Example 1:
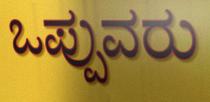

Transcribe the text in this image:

ಒಪ್ಪುವರು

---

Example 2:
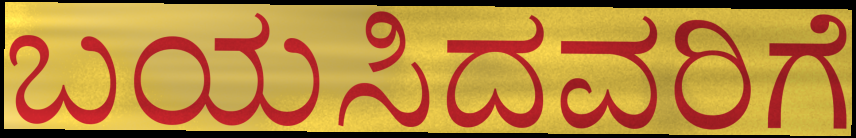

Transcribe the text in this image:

ಬಯಸಿದವರಿಗೆ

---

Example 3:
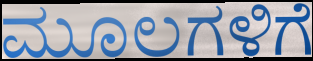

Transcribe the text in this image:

ಮೂಲಗಳಿಗೆ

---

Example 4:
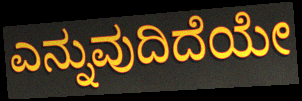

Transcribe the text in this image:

ಎನ್ನುವುದಿದೆಯೇ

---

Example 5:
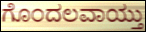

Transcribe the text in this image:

ಗೊಂದಲವಾಯ್ತು